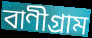
বাণীগ্রাম